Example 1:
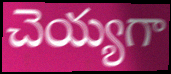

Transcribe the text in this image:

చెయ్యగా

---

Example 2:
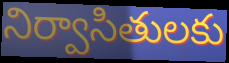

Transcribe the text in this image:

నిర్వాసితులకు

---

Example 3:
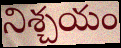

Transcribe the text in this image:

నిశ్చయం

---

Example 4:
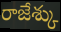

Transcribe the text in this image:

రాజేశ్కు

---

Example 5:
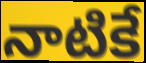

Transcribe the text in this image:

నాటికే